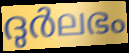
ദുർലഭം